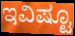
ಇವಿಷ್ಟೂ